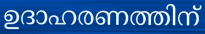
ഉദാഹരണത്തിന്